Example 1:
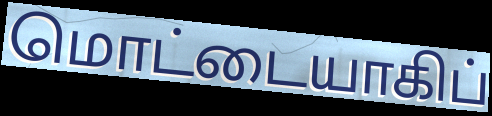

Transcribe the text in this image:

மொட்டையாகிப்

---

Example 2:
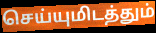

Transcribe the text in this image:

செய்யுமிடத்தும்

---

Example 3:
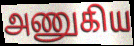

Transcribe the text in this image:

அணுகிய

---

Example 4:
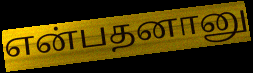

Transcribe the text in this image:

என்பதனானு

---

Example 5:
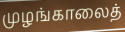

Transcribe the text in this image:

முழங்காலைத்